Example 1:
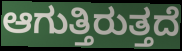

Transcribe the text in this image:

ಆಗುತ್ತಿರುತ್ತದೆ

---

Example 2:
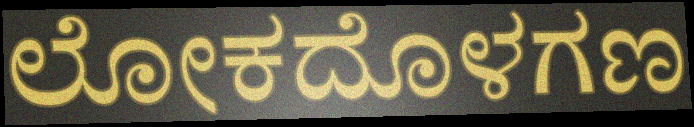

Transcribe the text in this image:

ಲೋಕದೊಳಗಣ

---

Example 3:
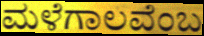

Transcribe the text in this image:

ಮಳೆಗಾಲವೆಂಬ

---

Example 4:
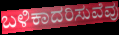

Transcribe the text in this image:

ಬಳಿಕಾದರಿಸುವೆವು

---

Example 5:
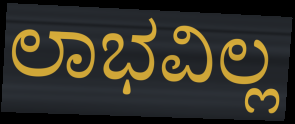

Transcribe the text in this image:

ಲಾಭವಿಲ್ಲ